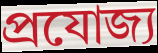
প্রযোজ্য